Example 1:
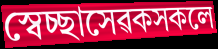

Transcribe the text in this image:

স্বেচ্ছাসেৱকসকলে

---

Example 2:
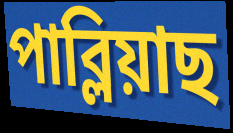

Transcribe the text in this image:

পাব্লিয়াছ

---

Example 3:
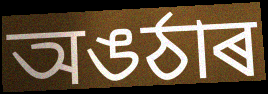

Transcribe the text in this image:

অঙঠাৰ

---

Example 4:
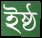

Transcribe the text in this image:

ইষ্ঠ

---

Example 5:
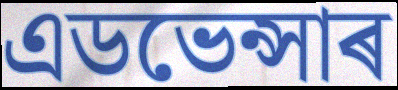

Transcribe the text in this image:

এডভেন্সাৰ